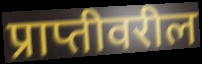
प्राप्तीवरील